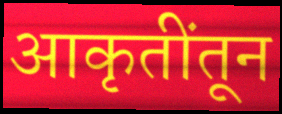
आकृतींतून